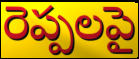
రెప్పలపై